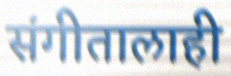
संगीतालाही